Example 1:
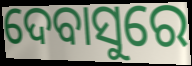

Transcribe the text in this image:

ଦେବାସୁରେ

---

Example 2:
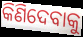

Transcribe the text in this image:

କିଣିଦେବାକୁ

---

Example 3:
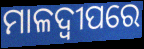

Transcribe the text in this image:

ମାଳଦ୍ବୀପରେ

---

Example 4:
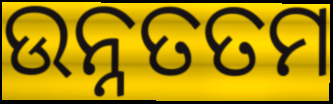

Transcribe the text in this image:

ଉନ୍ନତତମ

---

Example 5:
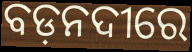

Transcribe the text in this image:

ବଡ଼ନଦୀରେ